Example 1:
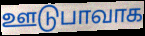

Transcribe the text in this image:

ஊடுபாவாக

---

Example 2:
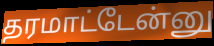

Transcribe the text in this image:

தரமாட்டேன்னு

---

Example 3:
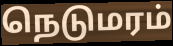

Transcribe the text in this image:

நெடுமரம்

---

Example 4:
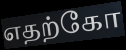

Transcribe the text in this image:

எதற்கோ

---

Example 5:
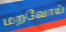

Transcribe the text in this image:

மறவோய்